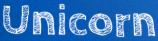
Unicorn